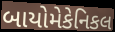
બાયોમેકેનિકલ